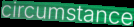
circumstance